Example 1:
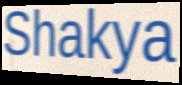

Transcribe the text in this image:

Shakya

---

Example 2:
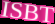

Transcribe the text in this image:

ISBT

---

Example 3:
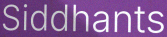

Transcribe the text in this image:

Siddhants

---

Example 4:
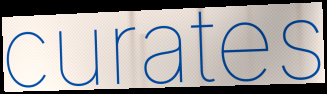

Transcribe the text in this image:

curates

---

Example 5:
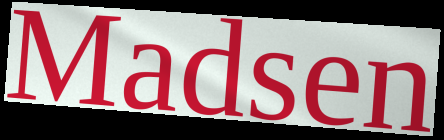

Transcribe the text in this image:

Madsen